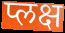
प्लक्ष